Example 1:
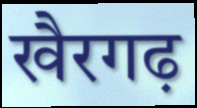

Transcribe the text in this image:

खैरगढ़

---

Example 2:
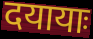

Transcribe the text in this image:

दयायाः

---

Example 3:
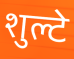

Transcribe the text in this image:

शुल्टे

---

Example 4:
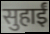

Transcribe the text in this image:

सुहाईं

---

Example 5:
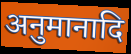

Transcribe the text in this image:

अनुमानादि